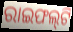
ରାଇଫଲ୍‌ଟି